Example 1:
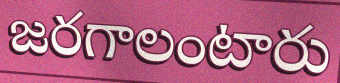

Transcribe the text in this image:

జరగాలంటారు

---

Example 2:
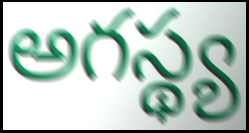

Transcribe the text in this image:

అగస్థ్య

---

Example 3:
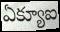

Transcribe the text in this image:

ఏక్యూఐ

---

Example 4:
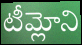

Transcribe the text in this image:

టీమ్లోని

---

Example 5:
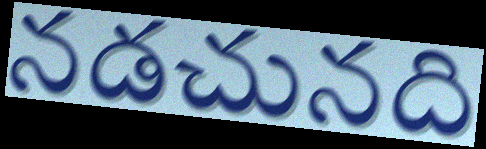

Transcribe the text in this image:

నడచునది